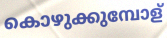
കൊഴുക്കുമ്പോള്